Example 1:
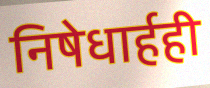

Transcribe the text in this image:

निषेधार्हही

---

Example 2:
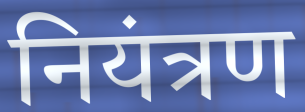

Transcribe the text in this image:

नियंत्रण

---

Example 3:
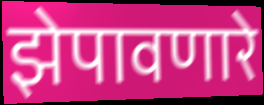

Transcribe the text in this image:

झेपावणारे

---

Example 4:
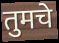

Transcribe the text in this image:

तुमचे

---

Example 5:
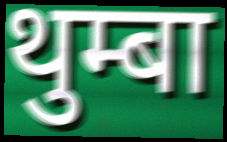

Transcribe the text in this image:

थुम्बा